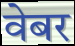
वेबर